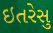
ઇતરેસુ